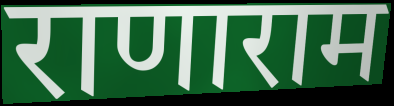
राणाराम